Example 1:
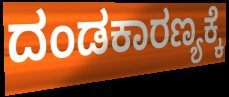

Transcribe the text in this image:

ದಂಡಕಾರಣ್ಯಕ್ಕೆ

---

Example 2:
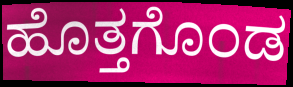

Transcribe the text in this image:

ಹೊತ್ತಗೊಂಡ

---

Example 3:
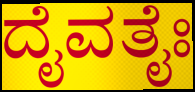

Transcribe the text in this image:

ದೈವತೈಃ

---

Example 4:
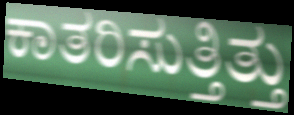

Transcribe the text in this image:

ಕಾತರಿಸುತ್ತಿತ್ತು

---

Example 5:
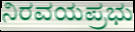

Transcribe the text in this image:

ನಿರವಯಪ್ರಭು